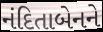
નંદિતાબેનને